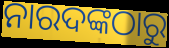
ନାରଦଙ୍କଠାରୁ